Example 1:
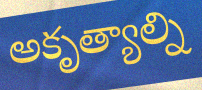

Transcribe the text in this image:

అకృత్యాల్ని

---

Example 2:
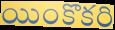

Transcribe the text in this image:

యింకొకరి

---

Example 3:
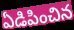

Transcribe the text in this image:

ఏడిపించిన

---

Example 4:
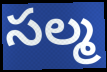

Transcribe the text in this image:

సల్మ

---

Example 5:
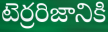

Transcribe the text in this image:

టెర్రరిజానికి